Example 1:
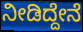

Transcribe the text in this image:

ನೀಡಿದ್ದೇನೆ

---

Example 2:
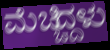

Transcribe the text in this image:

ಮೆಚ್ಚಿದ್ದಳು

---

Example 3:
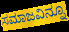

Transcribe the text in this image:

ಸಮಾಜವಿನ್ನೂ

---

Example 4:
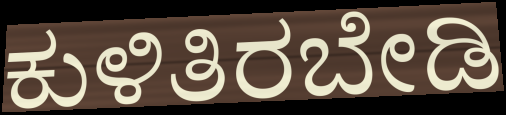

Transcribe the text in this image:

ಕುಳಿತಿರಬೇಡಿ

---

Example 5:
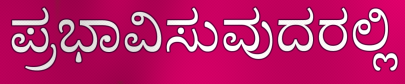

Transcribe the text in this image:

ಪ್ರಭಾವಿಸುವುದರಲ್ಲಿ